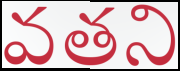
వతని